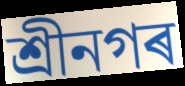
শ্ৰীনগৰ